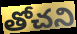
తోచని